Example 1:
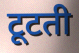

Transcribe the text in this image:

टूटती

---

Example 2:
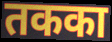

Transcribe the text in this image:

तकका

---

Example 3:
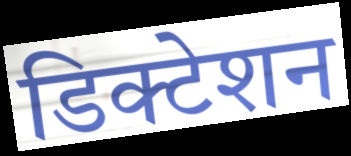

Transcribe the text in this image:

डिक्टेशन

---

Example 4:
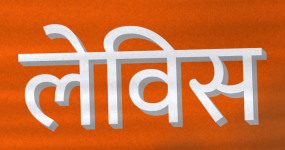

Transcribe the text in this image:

लेविस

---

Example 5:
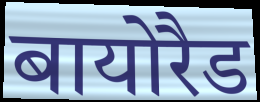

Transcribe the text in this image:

बायोरैड